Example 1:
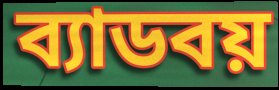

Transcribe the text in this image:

ব্যাডবয়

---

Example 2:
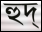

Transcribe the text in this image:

হুদ্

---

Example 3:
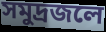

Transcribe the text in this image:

সমুদ্রজলে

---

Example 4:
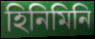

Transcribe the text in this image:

হিনিমিনি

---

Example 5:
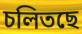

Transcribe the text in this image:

চলিতছে